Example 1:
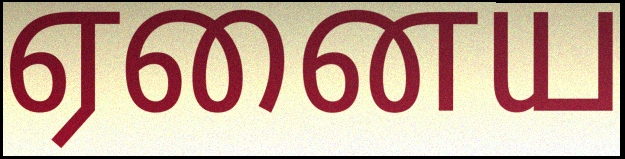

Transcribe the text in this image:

ஏனைய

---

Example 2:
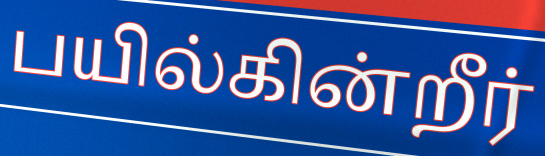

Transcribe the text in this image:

பயில்கின்றீர்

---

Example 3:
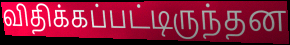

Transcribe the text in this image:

விதிக்கப்பட்டிருந்தன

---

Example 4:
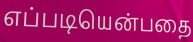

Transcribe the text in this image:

எப்படியென்பதை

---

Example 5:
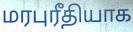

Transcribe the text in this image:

மரபுரீதியாக